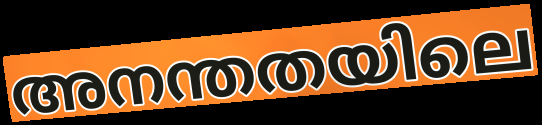
അനന്തതയിലെ